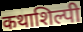
कथाशिल्पी